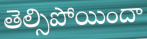
తెల్సిపోయిందా